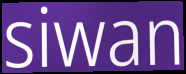
siwan